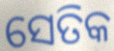
ସେତିକ